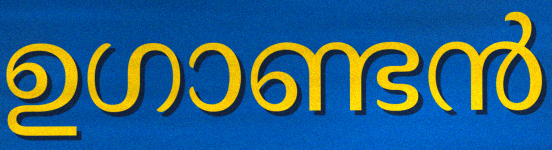
ഉഗാണ്ടൻ